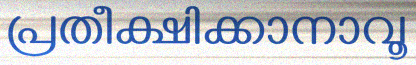
പ്രതീക്ഷിക്കാനാവൂ